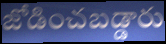
జోడించబడ్డారు